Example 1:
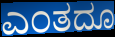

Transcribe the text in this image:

ಎಂತದೂ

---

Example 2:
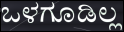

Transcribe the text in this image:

ಒಳಗೂಡಿಲ್ಲ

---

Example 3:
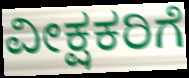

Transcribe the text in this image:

ವೀಕ್ಷಕರಿಗೆ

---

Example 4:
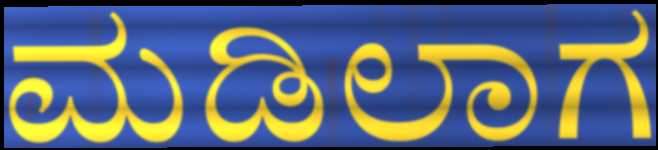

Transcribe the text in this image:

ಮಡಿಲಾಗ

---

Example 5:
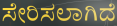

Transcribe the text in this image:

ಸೇರಿಸಲಾಗಿದೆ